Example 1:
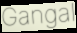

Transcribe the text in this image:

Gangal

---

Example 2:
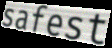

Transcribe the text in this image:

safest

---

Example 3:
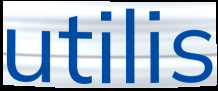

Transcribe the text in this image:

utilis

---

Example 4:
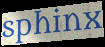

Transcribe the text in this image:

sphinx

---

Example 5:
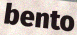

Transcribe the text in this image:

bento